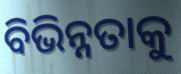
ବିଭିନ୍ନତାକୁ